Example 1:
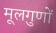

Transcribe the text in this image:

मूलगुणों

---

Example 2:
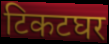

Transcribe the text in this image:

टिकटघर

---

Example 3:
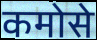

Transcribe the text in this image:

कमोसे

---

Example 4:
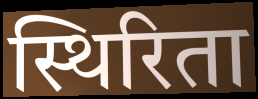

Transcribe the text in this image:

स्थिरिता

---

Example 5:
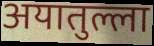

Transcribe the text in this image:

अयातुल्‍ला